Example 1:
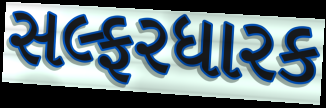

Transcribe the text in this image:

સલ્ફરધારક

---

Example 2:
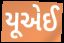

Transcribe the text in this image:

યૂએઈ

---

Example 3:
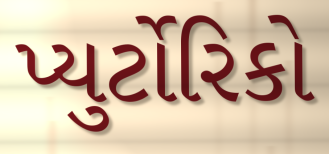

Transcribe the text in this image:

પ્યુર્ટોરિકો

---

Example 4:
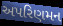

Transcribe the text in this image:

અપરિણમન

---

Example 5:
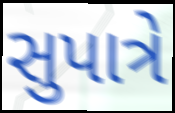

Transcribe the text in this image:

સુપાત્રે